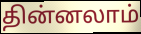
தின்னலாம்